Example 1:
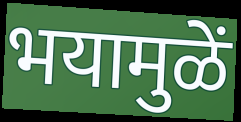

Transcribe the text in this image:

भयामुळें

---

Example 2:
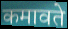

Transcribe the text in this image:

कमावते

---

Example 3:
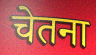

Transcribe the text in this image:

चेतना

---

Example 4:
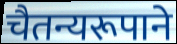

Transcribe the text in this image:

चैतन्यरूपाने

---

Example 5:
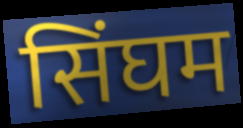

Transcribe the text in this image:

सिंघम